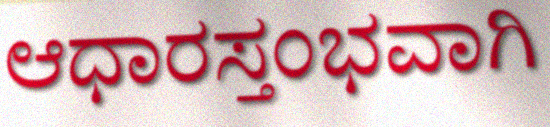
ಆಧಾರಸ್ತಂಭವಾಗಿ